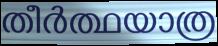
തീർത്ഥയാത്ര